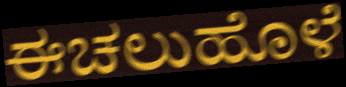
ಈಚಲುಹೊಳೆ